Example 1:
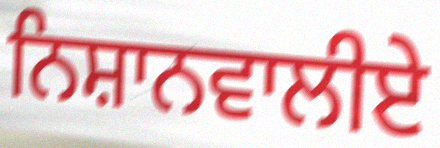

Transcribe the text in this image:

ਨਿਸ਼ਾਨਵਾਲੀਏ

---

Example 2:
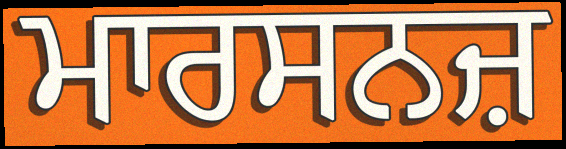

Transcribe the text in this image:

ਮਾਰਸਨਜ਼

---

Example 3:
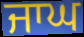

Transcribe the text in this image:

ਜਾਘ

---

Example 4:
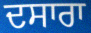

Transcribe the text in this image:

ਦਸਾਰਾ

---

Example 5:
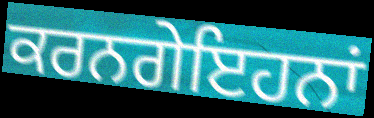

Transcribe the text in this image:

ਕਰਨਗੇਇਹਨਾਂ